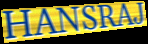
HANSRAJ